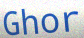
Ghor